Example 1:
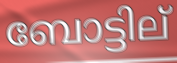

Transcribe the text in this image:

ബോട്ടില്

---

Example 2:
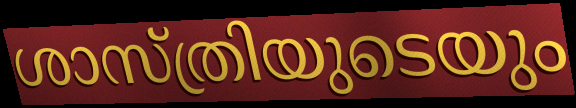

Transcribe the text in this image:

ശാസ്ത്രിയുടെയും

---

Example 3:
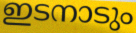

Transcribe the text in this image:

ഇടനാടും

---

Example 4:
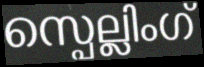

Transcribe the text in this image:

സ്പെല്ലിംഗ്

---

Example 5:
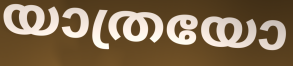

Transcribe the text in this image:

യാത്രയോ